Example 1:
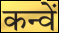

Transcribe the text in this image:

कन्वें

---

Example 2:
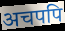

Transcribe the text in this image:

अचपपि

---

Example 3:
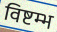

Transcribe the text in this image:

विष्टम्भ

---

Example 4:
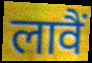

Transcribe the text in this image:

लावैं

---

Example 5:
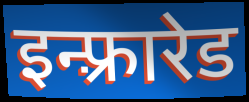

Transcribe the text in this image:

इन्फ़्रारेड